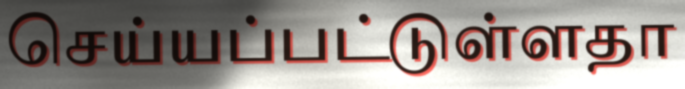
செய்யப்பட்டுள்ளதா